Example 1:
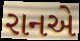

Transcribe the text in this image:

રાનએ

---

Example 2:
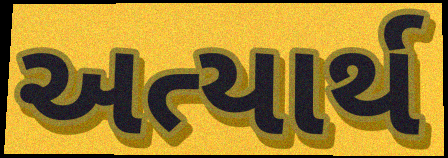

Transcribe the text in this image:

અત્યાર્થ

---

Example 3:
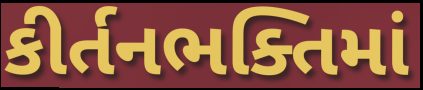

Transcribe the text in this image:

કીર્તનભક્તિમાં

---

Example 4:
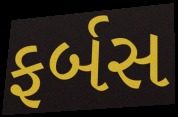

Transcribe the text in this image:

ફર્બસ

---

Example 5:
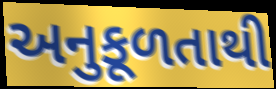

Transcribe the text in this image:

અનુકૂળતાથી